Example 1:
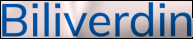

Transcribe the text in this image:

Biliverdin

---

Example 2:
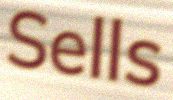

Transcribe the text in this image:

Sells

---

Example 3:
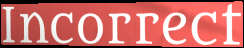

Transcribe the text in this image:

Incorrect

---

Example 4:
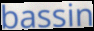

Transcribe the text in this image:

bassin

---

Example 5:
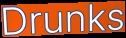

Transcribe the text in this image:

Drunks